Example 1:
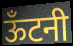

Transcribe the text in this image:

ऊँटनी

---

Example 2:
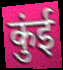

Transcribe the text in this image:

कुंई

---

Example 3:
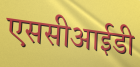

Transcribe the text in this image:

एससीआईडी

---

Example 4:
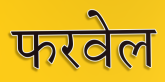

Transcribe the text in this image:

फरवेल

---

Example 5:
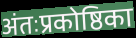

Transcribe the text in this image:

अंतःप्रकोष्ठिका